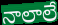
నాలాలే